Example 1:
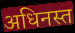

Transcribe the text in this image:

अधिनस्त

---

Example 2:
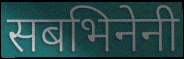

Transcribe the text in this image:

सबभिनेनी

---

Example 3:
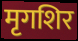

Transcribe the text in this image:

मृगशिर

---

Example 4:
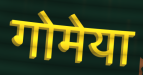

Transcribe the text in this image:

गोमेया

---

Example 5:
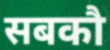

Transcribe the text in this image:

सबकौ